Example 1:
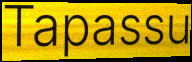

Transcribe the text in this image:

Tapassu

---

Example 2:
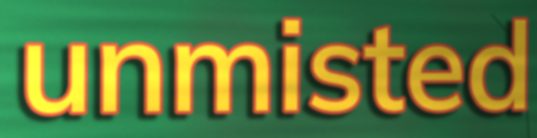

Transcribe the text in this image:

unmisted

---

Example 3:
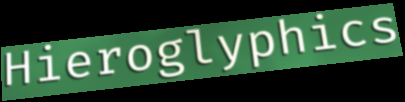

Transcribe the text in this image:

Hieroglyphics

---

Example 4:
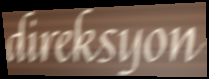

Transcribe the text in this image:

direksyon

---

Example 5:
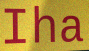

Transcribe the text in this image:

Iha